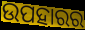
ଉପହାରର